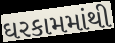
ઘરકામમાંથી